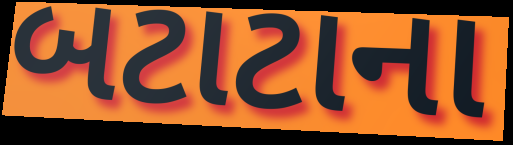
બટાટાના